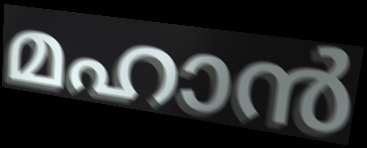
മഹാൻ